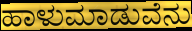
ಹಾಳುಮಾಡುವೆನು